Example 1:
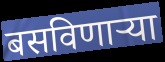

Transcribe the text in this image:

बसविणार्‍या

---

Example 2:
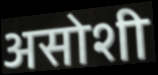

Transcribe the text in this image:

असोशी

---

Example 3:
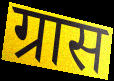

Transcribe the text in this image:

ग्रास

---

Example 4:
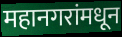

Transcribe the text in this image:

महानगरांमधून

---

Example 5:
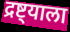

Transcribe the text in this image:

द्रष्ट्याला